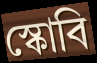
স্কোবি